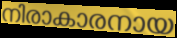
നിരാകാരനായ